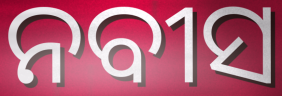
ନବୀସ